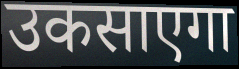
उकसाएगा